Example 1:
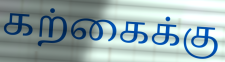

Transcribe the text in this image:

கற்கைக்கு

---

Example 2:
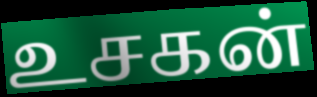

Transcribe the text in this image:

உசகன்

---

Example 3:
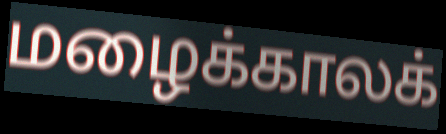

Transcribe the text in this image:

மழைக்காலக்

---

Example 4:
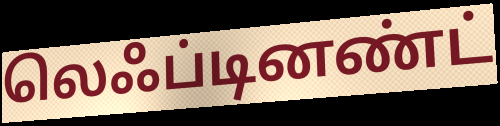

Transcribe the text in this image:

லெஃப்டினண்ட்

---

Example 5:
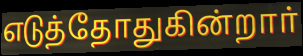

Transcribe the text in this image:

எடுத்தோதுகின்றார்